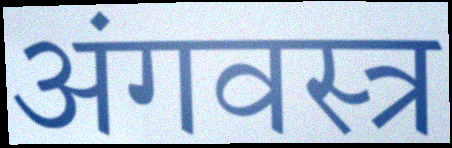
अंगवस्त्र